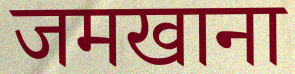
जमखाना